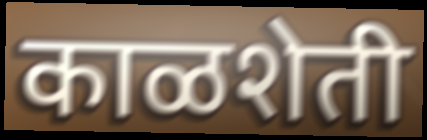
काळशेती